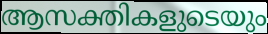
ആസക്തികളുടെയും